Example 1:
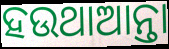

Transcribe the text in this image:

ହଉଥାଆନ୍ତା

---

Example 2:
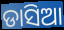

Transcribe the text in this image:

ଡାସିଆ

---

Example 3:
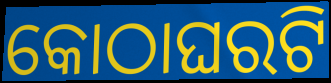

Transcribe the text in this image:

କୋଠାଘରଟି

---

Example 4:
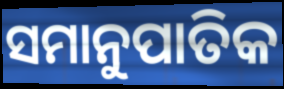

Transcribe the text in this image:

ସମାନୁପାତିକ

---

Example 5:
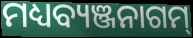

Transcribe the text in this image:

ମଧ୍ୟବ୍ୟଞ୍ଜନାଗମ୍